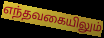
எந்தவகையிலும்